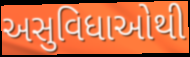
અસુવિધાઓથી